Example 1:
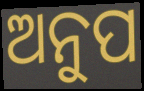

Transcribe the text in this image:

ଅନୁପ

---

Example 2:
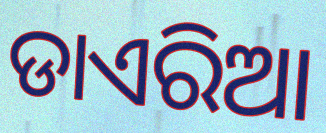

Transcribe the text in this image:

ଡାଏରିଆ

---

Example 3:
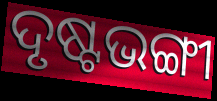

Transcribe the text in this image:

ଦୃଷ୍ଟଭଙ୍ଗୀ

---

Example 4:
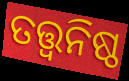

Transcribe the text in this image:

ତତ୍ତ୍ୱନିଷ୍ଠ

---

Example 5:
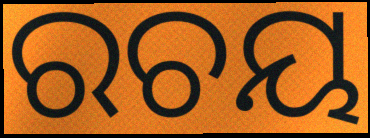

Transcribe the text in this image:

ରଚୟ